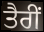
ਤੈਰੀਂ